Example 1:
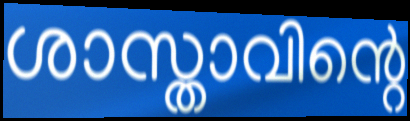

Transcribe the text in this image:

ശാസ്താവിന്റെ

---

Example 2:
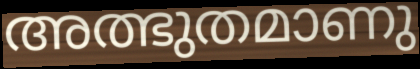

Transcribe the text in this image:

അത്ഭുതമാണു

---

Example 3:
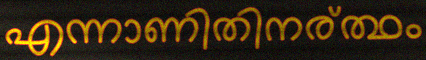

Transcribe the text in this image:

എന്നാണിതിനര്ത്ഥം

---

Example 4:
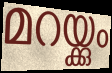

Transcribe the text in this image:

മറയ്ക്കും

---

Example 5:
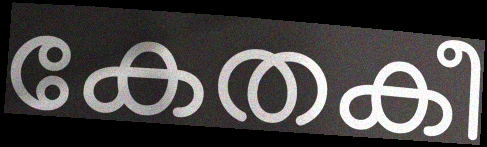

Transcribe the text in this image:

കേതകീ